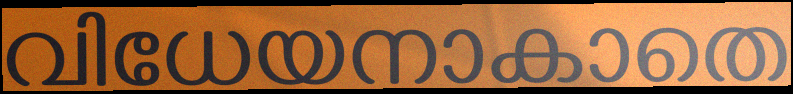
വിധേയനാകാതെ